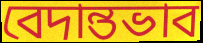
বেদান্তভাব